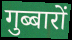
गुब्बारों